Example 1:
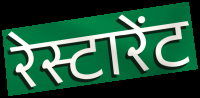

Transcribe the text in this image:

रेस्टारेंट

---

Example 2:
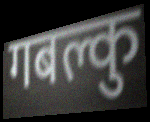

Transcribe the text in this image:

गबल्कु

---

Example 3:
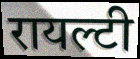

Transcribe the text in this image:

रायल्टी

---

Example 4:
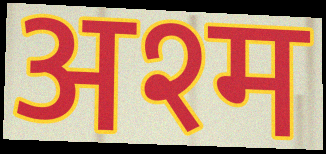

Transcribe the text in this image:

अश्म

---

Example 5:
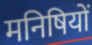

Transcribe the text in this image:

मनिषियों